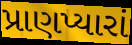
પ્રાણપ્યારાં